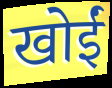
खोईं